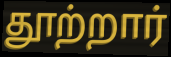
தூற்றார்